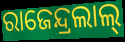
ରାଜେନ୍ଦ୍ରଲାଲ୍